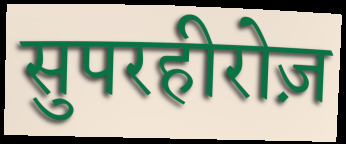
सुपरहीरोज़